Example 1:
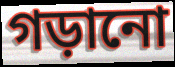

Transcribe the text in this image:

গড়ানো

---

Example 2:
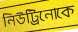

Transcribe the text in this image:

নিউট্রিনোকে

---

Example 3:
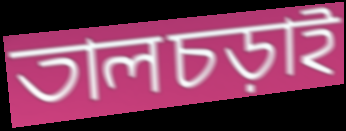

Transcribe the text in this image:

তালচড়াই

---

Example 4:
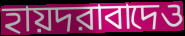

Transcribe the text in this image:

হায়দরাবাদেও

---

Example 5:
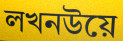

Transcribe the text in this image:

লখনউয়ে